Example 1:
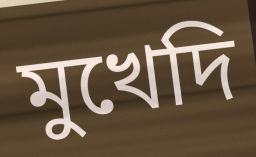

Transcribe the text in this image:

মুখেদি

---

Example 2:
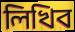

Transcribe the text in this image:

লিখিব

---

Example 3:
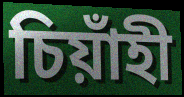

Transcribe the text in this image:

চিয়াঁহী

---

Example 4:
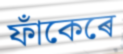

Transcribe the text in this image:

ফাঁকেৰে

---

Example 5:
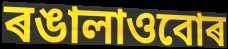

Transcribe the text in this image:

ৰঙালাওবোৰ